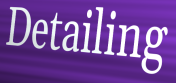
Detailing